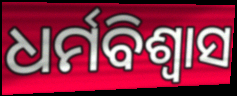
ଧର୍ମବିଶ୍ବାସ